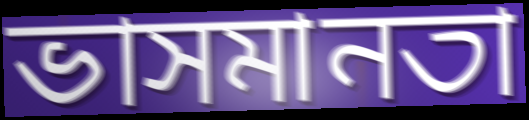
ভাসমানতা